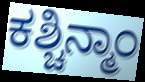
ಕಶ್ಚಿನ್ಮಾಂ